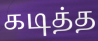
கடித்த